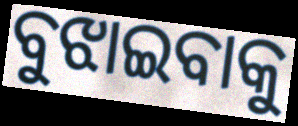
ବୁଝାଇବାକୁ